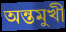
অন্তমুখী